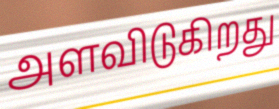
அளவிடுகிறது